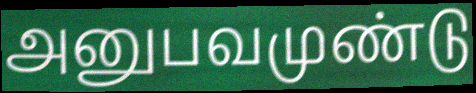
அனுபவமுண்டு